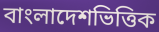
বাংলাদেশভিত্তিক